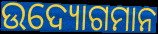
ଉଦ୍ୟୋଗମାନ